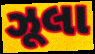
ઝૂલા